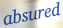
absured